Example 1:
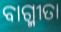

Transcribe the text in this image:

ବାଗ୍ମୀତା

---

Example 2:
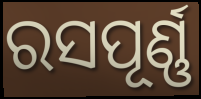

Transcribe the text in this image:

ରସପୂର୍ଣ୍ଣ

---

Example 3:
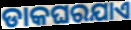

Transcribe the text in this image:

ଡାକଘରଯାଏ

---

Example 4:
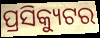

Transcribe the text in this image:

ପ୍ରସିକ୍ୟୁଟର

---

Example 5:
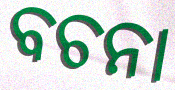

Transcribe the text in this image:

ବଚନା